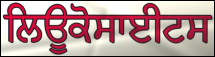
ਲਿਊਕੋਸਾਈਟਸ